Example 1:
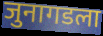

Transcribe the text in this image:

जुनागडला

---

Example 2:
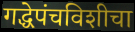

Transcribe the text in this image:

गद्धेपंचविशीचा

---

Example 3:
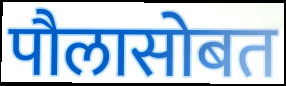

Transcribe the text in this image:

पौलासोबत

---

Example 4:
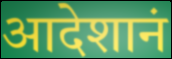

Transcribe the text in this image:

आदेशानं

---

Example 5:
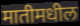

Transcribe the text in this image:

मातीमधील